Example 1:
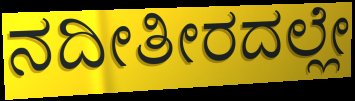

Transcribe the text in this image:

ನದೀತೀರದಲ್ಲೇ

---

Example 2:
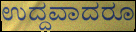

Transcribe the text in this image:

ಉದ್ದವಾದರೂ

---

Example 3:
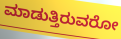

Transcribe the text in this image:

ಮಾಡುತ್ತಿರುವರೋ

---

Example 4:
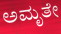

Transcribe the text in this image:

ಅಮೃತೇ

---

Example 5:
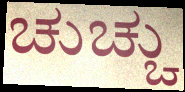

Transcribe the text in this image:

ಚುಚ್ಚು